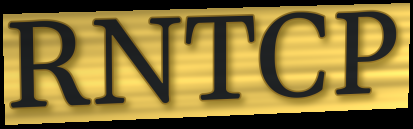
RNTCP